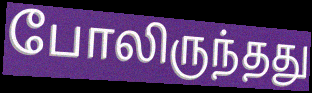
போலிருந்தது